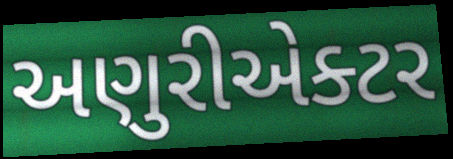
અણુરીએક્ટર